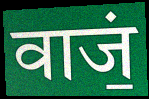
वाजं॒